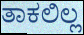
ತಾಕಲಿಲ್ಲ